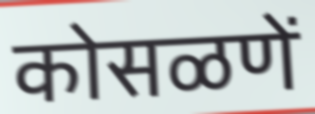
कोसळणें